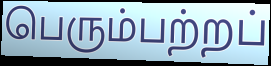
பெரும்பற்றப்